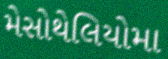
મેસોથેલિયોમા